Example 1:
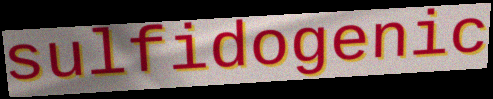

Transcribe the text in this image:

sulfidogenic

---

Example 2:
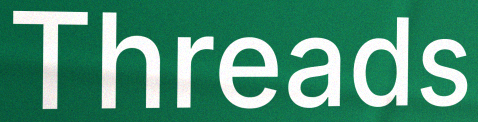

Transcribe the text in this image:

Threads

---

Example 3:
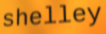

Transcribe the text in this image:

shelley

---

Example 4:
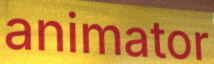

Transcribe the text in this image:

animator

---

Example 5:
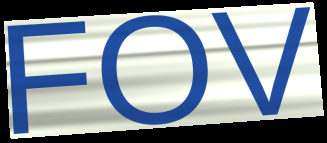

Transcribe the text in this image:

FOV